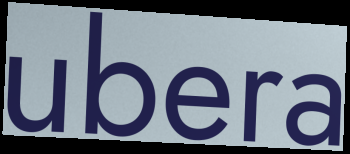
ubera